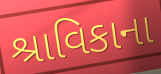
શ્રાવિકાના